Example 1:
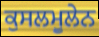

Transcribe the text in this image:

ਕੁਸਲਮੂਲੇਨ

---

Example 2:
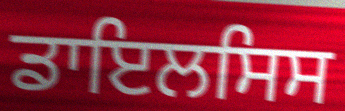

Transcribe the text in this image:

ਡਾਇਲਸਿਸ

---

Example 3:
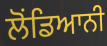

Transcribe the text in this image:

ਲੋਂਡਿਆਨੀ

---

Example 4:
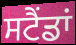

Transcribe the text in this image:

ਸਟੈਂਡਾਂ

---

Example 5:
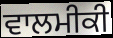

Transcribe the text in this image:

ਵਾਲਮੀਕੀ